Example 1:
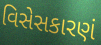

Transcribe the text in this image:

વિસેસકારણં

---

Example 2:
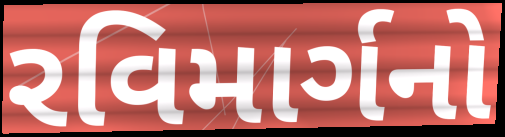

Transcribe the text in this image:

રવિમાર્ગનો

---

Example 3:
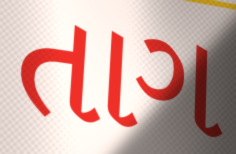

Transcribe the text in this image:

તાગ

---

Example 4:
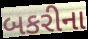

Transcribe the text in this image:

બકરીના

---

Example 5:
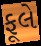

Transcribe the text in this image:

ફૂલે